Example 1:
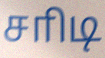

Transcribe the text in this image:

சரிடி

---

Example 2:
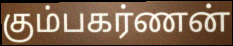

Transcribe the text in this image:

கும்பகர்ணன்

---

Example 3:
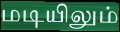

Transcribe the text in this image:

மடியிலும்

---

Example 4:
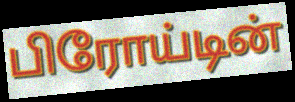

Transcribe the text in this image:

பிரோய்டின்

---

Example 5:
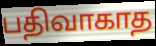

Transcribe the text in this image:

பதிவாகாத